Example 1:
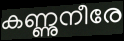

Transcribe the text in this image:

കണ്ണുനീരേ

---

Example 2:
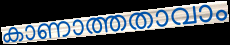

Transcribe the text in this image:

കാണാത്തതാവാം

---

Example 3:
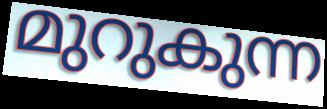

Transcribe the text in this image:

മുറുകുന്ന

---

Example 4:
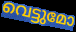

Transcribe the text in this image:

വെട്ടുമോ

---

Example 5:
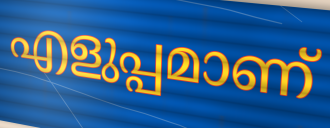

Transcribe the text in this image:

എളുപ്പമാണ്